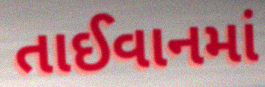
તાઈવાનમાં